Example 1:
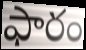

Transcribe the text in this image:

ఫారం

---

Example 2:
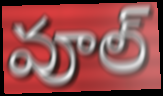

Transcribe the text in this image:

వూల్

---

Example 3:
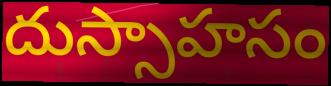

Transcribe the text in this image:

దుస్సాహసం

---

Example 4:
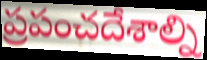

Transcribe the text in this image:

ప్రపంచదేశాల్ని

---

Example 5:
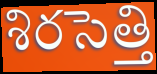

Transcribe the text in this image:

శిరసెత్తి